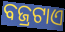
ବଜ୍ରଟାଏ